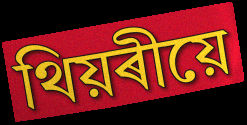
থিয়ৰীয়ে